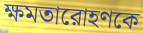
ক্ষমতারোহণকে